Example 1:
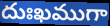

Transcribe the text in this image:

దుఃఖముగా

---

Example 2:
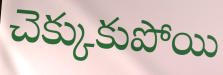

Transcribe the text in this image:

చెక్కుకుపోయి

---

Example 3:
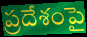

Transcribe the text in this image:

ప్రదేశంపై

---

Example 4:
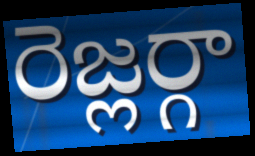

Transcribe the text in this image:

రెజ్లర్గా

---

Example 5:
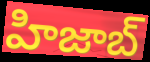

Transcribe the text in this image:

హిజాబ్